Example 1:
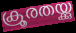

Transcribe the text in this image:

ക്രൂരതയ്ക്കു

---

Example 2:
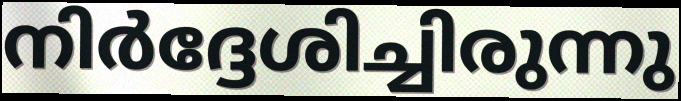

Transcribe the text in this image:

നിർദ്ദേശിച്ചിരുന്നു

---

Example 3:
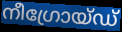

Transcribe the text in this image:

നീഗ്രോയ്ഡ്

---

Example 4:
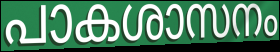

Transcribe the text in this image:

പാകശാസനം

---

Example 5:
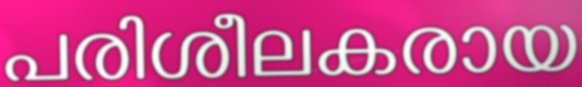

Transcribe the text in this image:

പരിശീലകരായ